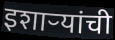
इशाऱ्यांची